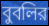
বুবলির